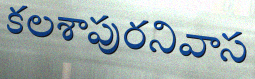
కలశాపురనివాస